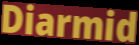
Diarmid